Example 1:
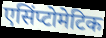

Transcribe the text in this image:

एसिंप्टोमेटिक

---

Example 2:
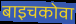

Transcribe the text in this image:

बाइचकोवा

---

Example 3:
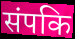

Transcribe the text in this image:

संपकि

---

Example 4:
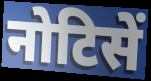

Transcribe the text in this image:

नोटिसें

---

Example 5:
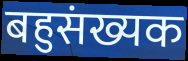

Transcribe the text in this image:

बहुसंख्यक